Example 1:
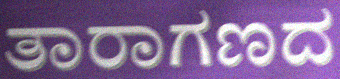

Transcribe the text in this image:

ತಾರಾಗಣದ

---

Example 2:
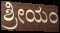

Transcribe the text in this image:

ಶ್ರೀಯಂ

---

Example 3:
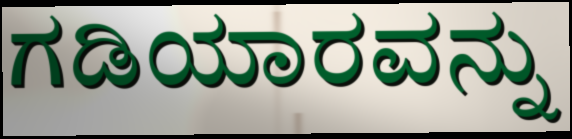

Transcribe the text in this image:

ಗಡಿಯಾರವನ್ನು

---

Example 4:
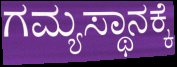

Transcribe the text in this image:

ಗಮ್ಯಸ್ಥಾನಕ್ಕೆ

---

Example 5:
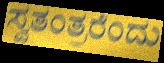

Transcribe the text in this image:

ಸ್ವತಂತ್ರರೆಂದು